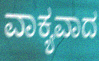
ವಾಕ್ಯವಾದ